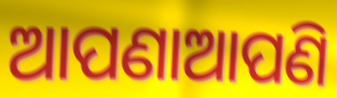
ଆପଣାଆପଣି